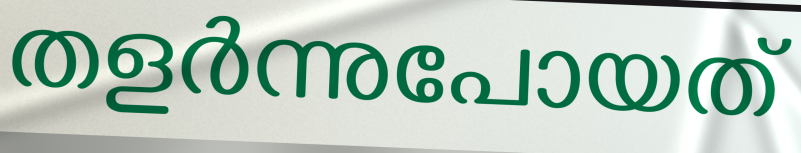
തളർന്നുപോയത്